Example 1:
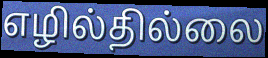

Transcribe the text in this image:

எழில்தில்லை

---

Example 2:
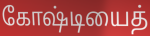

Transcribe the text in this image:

கோஷ்டியைத்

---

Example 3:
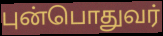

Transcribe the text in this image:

புன்பொதுவர்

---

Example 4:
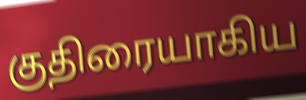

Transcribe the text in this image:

குதிரையாகிய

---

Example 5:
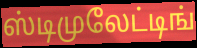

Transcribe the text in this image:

ஸ்டிமுலேட்டிங்